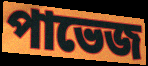
পাভেজ